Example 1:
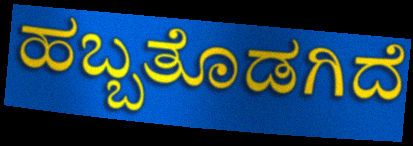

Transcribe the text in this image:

ಹಬ್ಬತೊಡಗಿದೆ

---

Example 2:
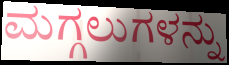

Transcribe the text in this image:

ಮಗ್ಗಲುಗಳನ್ನು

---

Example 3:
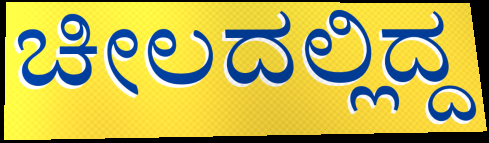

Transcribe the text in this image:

ಚೀಲದಲ್ಲಿದ್ದ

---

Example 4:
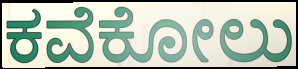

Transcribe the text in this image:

ಕವೆಕೋಲು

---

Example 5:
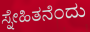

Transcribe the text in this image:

ಸ್ನೇಹಿತನೆಂದು